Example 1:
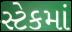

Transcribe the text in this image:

સ્ટેકમાં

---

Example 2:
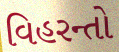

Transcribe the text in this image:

વિહરન્તો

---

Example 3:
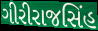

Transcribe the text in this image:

ગીરીરાજસિંહ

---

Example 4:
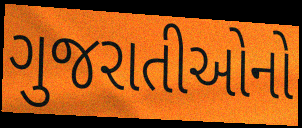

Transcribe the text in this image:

ગુજરાતીઓનો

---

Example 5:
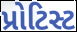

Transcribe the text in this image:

પ્રોટિસ્ટ